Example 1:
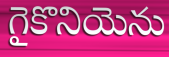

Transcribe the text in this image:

గైకొనియెను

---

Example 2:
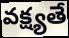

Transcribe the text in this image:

వక్ష్యతే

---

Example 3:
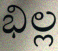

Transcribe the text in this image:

భిల్ల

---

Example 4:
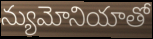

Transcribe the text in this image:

న్యుమోనియాతో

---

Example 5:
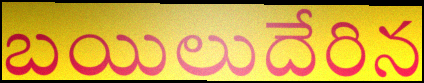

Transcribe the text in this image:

బయిలుదేరిన